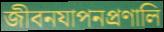
জীবনযাপনপ্রণালি